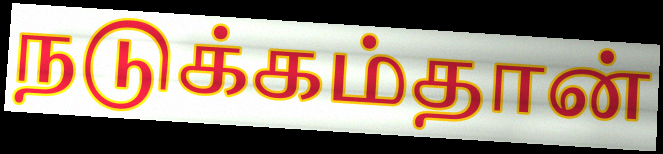
நடுக்கம்தான்